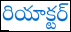
రియాక్టర్